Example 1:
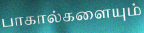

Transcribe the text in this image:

பாகால்களையும்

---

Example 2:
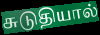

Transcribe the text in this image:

சுடுதியால்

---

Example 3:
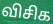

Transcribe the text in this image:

விசிக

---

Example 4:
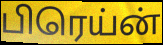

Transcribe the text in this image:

பிரெய்ன்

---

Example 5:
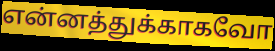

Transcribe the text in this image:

என்னத்துக்காகவோ